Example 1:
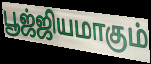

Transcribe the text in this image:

பூஜ்ஜியமாகும்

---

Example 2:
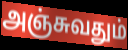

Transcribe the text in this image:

அஞ்சுவதும்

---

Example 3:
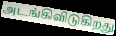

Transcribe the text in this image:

அடங்கிவிடுகிறது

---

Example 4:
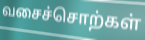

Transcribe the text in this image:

வசைச்சொற்கள்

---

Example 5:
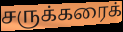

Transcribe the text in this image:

சருக்கரைக்